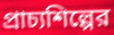
প্রাচ্যশিল্পের